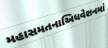
મહાસમતનાઅિધવેશનમાં